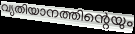
വ്യതിയാനത്തിന്റെയും